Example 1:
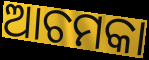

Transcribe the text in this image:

ଆଚମକା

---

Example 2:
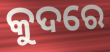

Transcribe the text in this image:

କୁଦରେ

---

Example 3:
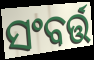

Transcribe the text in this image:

ସଂବର୍ତ୍ତ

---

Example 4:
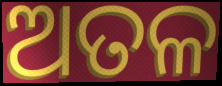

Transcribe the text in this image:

ଅତଳ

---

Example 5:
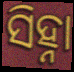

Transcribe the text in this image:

ସିହ୍ନା